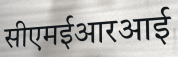
सीएमईआरआई